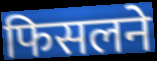
फिसलने